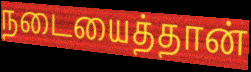
நடையைத்தான்